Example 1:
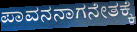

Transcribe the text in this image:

ಪಾವನನಾಗನೇತಕ್ಕೆ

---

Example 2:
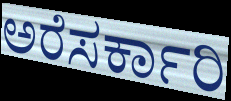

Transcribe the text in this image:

ಅರೆಸರ್ಕಾರಿ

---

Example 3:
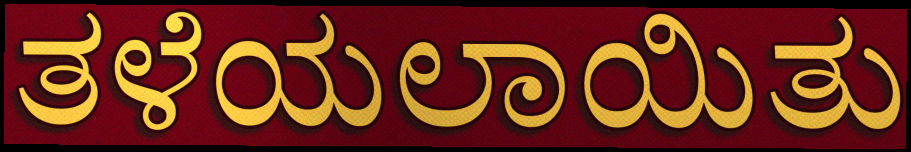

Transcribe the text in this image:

ತಳೆಯಲಾಯಿತು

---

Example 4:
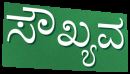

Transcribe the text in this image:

ಸೌಖ್ಯವ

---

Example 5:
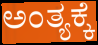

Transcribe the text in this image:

ಅಂತ್ಯಕ್ಕೆ